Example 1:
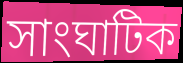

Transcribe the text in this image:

সাংঘাটিক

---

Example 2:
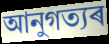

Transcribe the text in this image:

আনুগত্যৰ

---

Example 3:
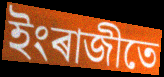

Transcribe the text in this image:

ইংৰাজীতে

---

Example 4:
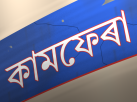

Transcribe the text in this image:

কামফেৰা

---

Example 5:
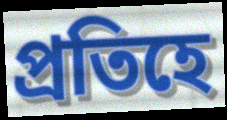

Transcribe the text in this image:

প্ৰতিহে